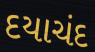
દયાચંદ